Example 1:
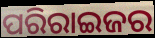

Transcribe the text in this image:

ପରିରାଇଜର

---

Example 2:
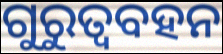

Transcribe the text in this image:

ଗୁରୁତ୍ୱବହନ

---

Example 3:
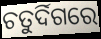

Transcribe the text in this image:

ଚତୁର୍ଦିଗରେ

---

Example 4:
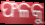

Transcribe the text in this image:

ଫଳକୁ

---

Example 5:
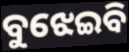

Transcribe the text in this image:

ବୁଝେଇବି